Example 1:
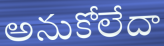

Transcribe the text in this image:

అనుకోలేదా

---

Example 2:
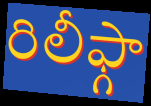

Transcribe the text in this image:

రిలీఫ్గా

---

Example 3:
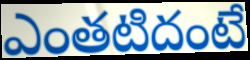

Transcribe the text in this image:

ఎంతటిదంటే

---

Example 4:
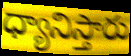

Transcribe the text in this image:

ధ్యానిస్తారు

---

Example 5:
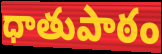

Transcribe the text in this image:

ధాతుపాఠం